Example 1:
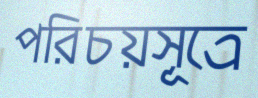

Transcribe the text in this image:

পরিচয়সূত্রে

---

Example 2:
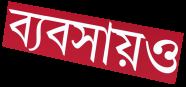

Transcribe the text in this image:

ব্যবসায়ও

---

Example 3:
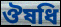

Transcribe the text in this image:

ঔষধি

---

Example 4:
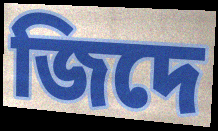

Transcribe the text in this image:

জিদে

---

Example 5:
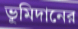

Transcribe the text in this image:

ভূমিদানের